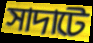
সাদাটে